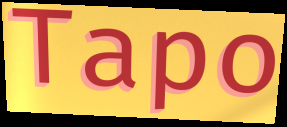
Tapo